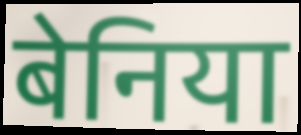
बेनिया